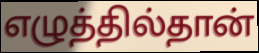
எழுத்தில்தான்